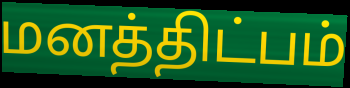
மனத்திட்பம்